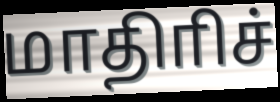
மாதிரிச்